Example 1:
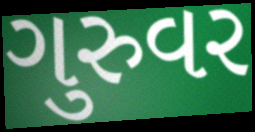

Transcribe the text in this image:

ગુરુવર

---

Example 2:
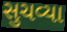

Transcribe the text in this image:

સુચવ્યા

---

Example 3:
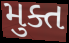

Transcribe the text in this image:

મુક્ત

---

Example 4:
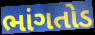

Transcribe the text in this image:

ભાંગતોડ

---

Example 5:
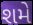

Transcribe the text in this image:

શમે